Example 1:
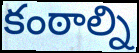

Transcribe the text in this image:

కంఠాల్ని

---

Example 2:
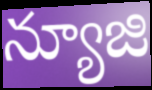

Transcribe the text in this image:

న్యూజి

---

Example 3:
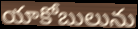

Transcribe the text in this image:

యాకోబులును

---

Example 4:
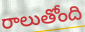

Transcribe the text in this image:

రాలుతోంది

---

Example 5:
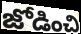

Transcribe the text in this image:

జోడించి